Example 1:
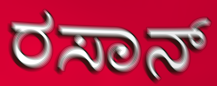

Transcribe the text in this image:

ರಸಾನ್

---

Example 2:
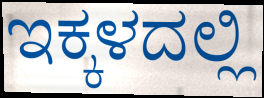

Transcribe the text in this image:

ಇಕ್ಕಳದಲ್ಲಿ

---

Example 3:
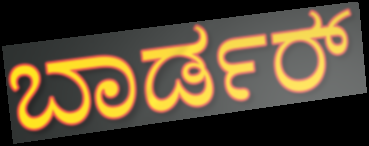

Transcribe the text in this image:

ಬಾರ್ಡರ್‍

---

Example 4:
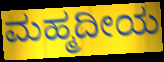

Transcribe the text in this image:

ಮಹ್ಮದೀಯ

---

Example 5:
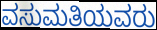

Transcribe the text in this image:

ವಸುಮತಿಯವರು